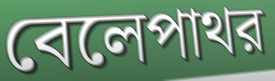
বেলেপাথর